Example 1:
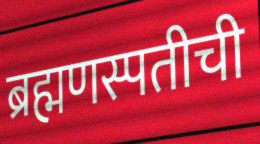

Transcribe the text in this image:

ब्रह्मणस्पतीची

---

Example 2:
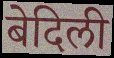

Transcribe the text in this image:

बेदिली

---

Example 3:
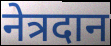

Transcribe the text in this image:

नेत्रदान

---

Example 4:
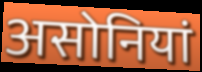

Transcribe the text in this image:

असोनियां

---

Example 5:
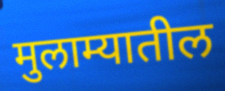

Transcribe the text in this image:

मुलाम्यातील